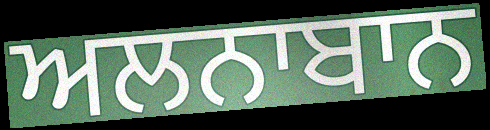
ਅਲਨਾਬਾਨ